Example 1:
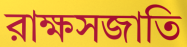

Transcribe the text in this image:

রাক্ষসজাতি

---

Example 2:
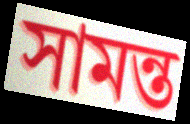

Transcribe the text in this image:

সামন্ত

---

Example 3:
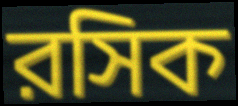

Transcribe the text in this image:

রসিক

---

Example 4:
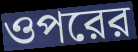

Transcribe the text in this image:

ওপরের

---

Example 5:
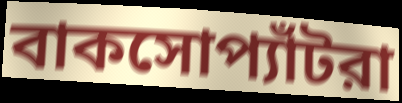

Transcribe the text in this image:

বাকসোপ্যাঁটরা